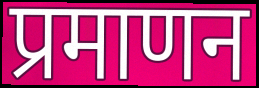
प्रमाणन